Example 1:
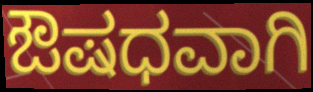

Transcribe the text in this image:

ಔಷಧವಾಗಿ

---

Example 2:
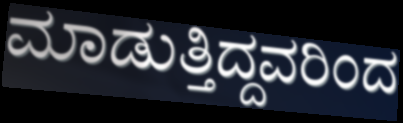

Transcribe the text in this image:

ಮಾಡುತ್ತಿದ್ದವರಿಂದ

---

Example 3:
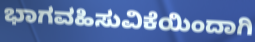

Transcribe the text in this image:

ಭಾಗವಹಿಸುವಿಕೆಯಿಂದಾಗಿ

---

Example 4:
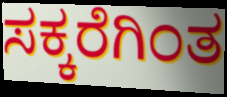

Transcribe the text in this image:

ಸಕ್ಕರೆಗಿಂತ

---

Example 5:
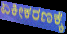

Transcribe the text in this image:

ಏಕೀಕರಣಕ್ಕೆ